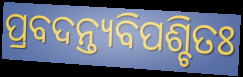
ପ୍ରବଦନ୍ତ୍ୟବିପଶ୍ଚିତଃ